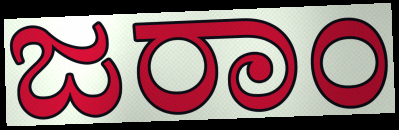
ಜರಾಂ